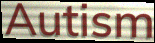
Autism